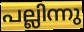
പല്ലിന്നു